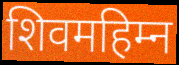
शिवमहिम्न